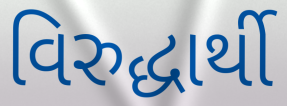
વિરુદ્ધાર્થી